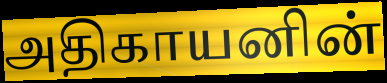
அதிகாயனின்